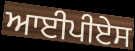
ਆਈਪੀਏਸ